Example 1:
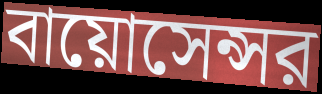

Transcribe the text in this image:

বায়োসেন্সর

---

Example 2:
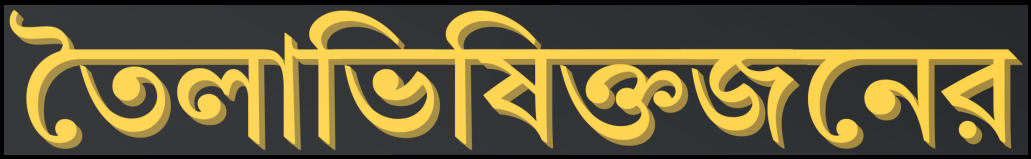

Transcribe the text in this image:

তৈলাভিষিক্তজনের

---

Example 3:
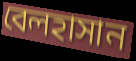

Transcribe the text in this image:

বেলহাসান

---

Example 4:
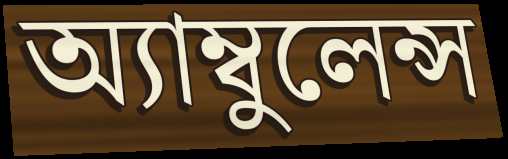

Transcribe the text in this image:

অ্যাম্বুলেন্স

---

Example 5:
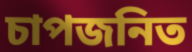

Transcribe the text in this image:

চাপজনিত